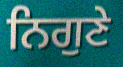
ਨਿਗੁਣੇ